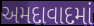
અમદાવાદમાં